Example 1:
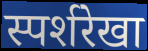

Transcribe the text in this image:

स्पर्शरेखा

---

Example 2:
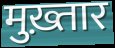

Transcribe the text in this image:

मुख़्तार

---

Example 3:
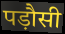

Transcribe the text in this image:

पड़ौसी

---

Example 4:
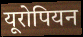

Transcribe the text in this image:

यूरोपियन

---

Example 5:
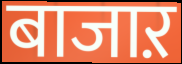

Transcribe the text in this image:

बाजाऱ